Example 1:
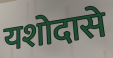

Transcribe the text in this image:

यशोदासे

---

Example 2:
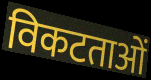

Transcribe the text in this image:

विकटताओं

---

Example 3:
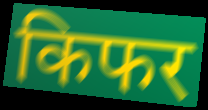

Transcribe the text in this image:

किफर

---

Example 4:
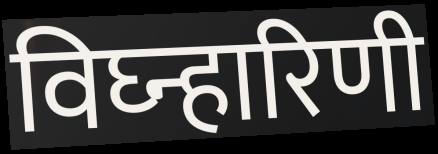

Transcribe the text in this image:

विघ्न्हारिणी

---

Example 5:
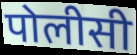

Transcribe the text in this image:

पोलीसी